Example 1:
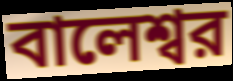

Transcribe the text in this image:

বালেশ্বর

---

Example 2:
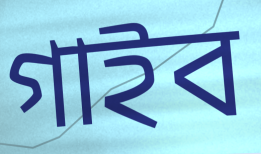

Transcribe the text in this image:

গাইব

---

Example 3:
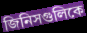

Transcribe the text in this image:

জিনিসগুলিকে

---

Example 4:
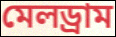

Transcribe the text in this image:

মেলড্রাম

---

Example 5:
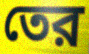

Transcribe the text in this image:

তের